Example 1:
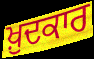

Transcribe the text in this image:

ਖ਼ੁਦਕਾਰ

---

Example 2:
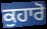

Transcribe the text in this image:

ਕੁਹਾਰੋ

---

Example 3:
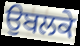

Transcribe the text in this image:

ਉਬਲਕੇ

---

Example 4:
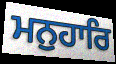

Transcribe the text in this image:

ਮਨੁਹਾਰਿ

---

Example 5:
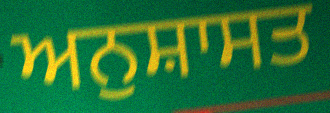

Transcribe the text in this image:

ਅਨੁਸ਼ਾਸਤ